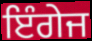
ਇੰਗੇਜ